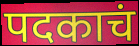
पदकाचं